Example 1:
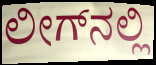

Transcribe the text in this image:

ಲೀಗ್‌ನಲ್ಲಿ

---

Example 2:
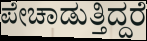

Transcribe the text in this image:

ಪೇಚಾಡುತ್ತಿದ್ದರೆ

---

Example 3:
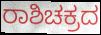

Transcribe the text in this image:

ರಾಶಿಚಕ್ರದ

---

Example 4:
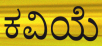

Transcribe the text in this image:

ಕವಿಯೆ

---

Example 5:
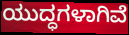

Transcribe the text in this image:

ಯುದ್ಧಗಳಾಗಿವೆ